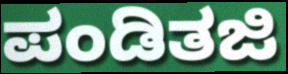
ಪಂಡಿತಜಿ